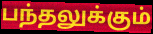
பந்தலுக்கும்